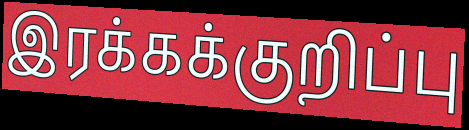
இரக்கக்குறிப்பு